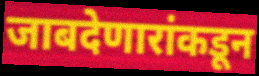
जाबदेणारांकडून